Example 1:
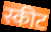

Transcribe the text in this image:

स्कीट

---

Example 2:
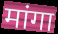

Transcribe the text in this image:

मांगा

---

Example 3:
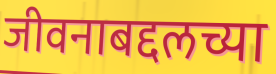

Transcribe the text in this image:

जीवनाबद्दलच्या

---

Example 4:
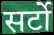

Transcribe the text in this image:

सर्टो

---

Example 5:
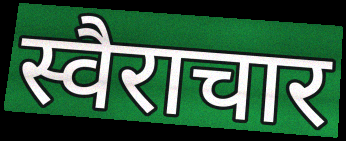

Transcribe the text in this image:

स्वैराचार